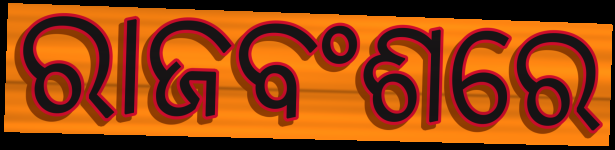
ରାଜବଂଶରେ